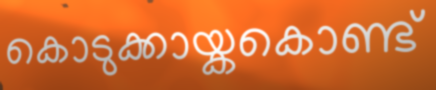
കൊടുക്കായ്കകൊണ്ട്